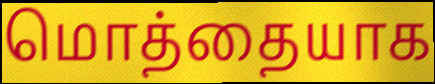
மொத்தையாக